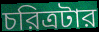
চরিত্রটার